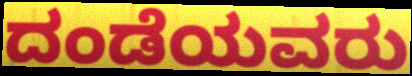
ದಂಡೆಯವರು